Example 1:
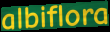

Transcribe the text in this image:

albiflora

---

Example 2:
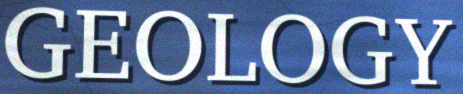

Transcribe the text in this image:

GEOLOGY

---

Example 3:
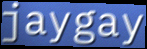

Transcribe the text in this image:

jaygay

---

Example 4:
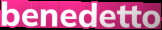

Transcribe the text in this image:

benedetto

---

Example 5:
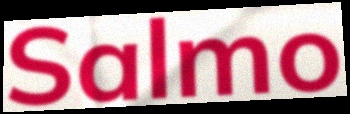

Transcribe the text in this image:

Salmo